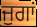
ਜੁਗਾਂ